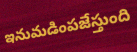
ఇనుమడింపజేస్తుంది